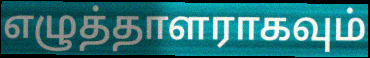
எழுத்தாளராகவும்